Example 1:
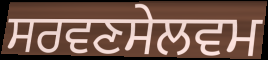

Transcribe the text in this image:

ਸਰਵਣਸੇਲਵਮ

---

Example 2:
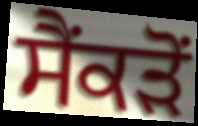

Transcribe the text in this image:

ਸੈਂਕੜੋਂ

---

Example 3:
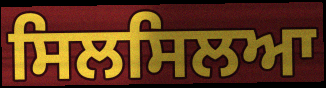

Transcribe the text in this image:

ਸਿਲਸਿਲਆ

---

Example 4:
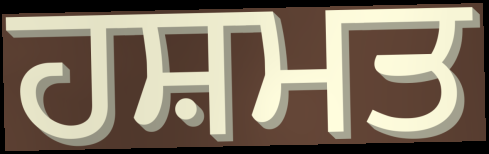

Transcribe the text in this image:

ਹਸ਼ਮਤ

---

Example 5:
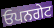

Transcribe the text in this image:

ਓਪਨਗੇਟ